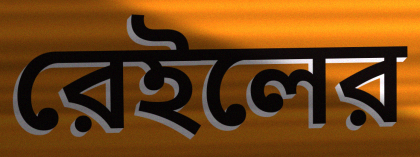
রেইলের